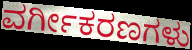
ವರ್ಗೀಕರಣಗಳು